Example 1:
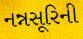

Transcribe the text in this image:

નન્નસૂરિની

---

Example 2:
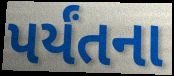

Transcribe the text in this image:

પર્યંતના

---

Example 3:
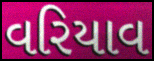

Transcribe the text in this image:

વરિયાવ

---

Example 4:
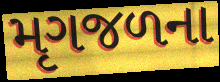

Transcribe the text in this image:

મૃગજળના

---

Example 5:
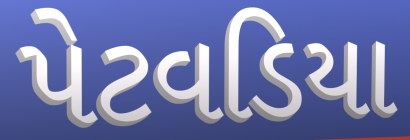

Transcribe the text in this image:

પેટવડિયા